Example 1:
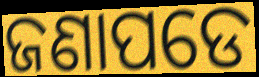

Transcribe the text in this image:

ଜଣାପଡେ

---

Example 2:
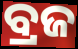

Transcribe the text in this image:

ବ୍ରଜ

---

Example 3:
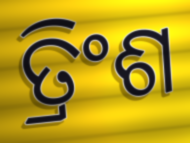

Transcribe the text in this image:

ତ୍ରିଂଶ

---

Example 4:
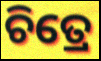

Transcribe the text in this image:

ଚିତ୍ରେ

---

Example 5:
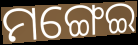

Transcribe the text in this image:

ମଙ୍ଗେଇ